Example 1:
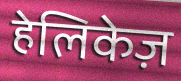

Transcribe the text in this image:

हेलिकेज़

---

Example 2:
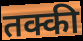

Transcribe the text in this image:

तक्की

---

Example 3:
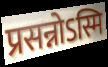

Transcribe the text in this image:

प्रसन्नोऽस्मि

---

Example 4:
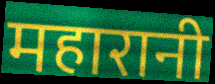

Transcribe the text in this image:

महारानी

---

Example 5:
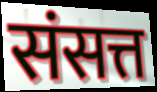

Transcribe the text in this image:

संसत्त